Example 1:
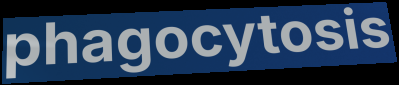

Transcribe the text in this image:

phagocytosis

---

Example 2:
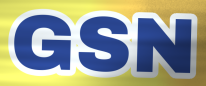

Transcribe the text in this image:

GSN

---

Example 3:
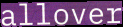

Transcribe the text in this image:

allover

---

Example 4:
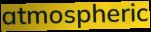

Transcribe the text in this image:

atmospheric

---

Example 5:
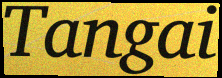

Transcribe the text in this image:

Tangai